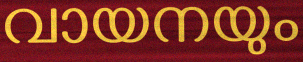
വായനയും